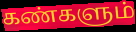
கண்களும்